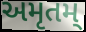
અમૃતમ્